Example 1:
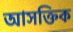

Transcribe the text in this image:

আসক্তিক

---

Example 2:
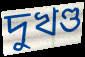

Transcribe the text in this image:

দুখণ্ড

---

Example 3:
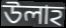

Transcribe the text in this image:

উলাহ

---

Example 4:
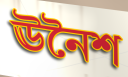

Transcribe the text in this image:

ঊনৈশ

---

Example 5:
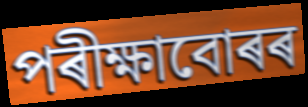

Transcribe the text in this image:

পৰীক্ষাবোৰৰ